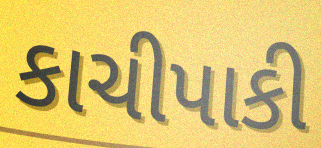
કાચીપાકી